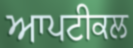
ਆਪਟੀਕਲ